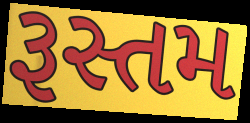
રૂસ્તમ